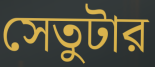
সেতুটার